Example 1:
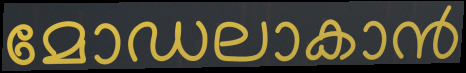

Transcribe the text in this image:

മോഡലാകാൻ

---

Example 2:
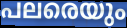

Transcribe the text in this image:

പലരെയും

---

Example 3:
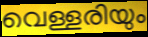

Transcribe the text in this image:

വെള്ളരിയും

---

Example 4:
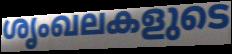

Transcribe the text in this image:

ശൃംഖലകളുടെ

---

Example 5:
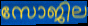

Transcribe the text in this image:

സോജില